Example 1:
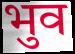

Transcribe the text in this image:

भुव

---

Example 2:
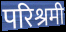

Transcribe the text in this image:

परिश्रमी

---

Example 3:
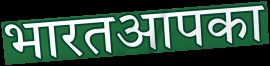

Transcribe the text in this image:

भारतआपका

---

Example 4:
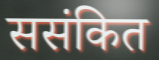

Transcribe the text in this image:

ससंकित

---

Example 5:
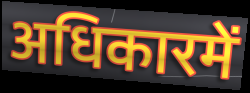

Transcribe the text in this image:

अधिकारमें